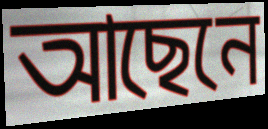
আছেনে